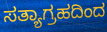
ಸತ್ಯಾಗ್ರಹದಿಂದ